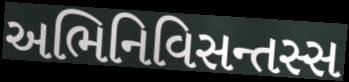
અભિનિવિસન્તસ્સ